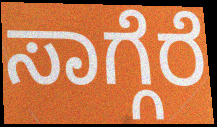
ಸಾಗ್ಗೆರೆ